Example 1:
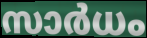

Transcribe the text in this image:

സാർധം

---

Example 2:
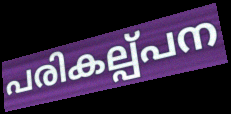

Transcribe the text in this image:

പരികല്പ്പന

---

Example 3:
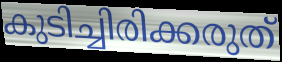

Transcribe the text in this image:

കുടിച്ചിരിക്കരുത്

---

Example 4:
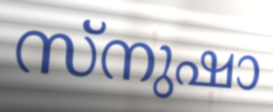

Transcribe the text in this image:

സ്നുഷാ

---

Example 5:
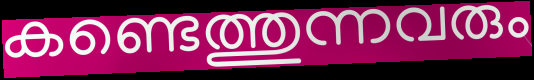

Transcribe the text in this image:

കണ്ടെത്തുന്നവരും